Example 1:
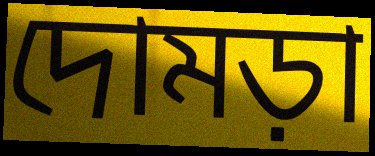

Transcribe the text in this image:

দোমড়া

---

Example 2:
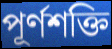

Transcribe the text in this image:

পূর্ণশক্তি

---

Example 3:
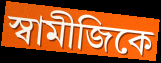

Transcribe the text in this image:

স্বামীজিকে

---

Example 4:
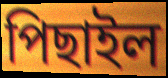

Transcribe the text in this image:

পিছাইল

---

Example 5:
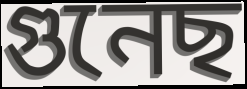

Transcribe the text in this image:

গুনেছ